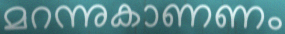
മറന്നുകാണണം